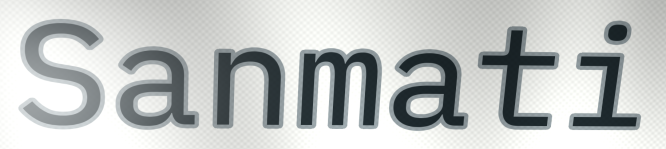
Sanmati